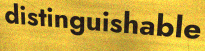
distinguishable